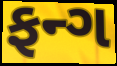
ફન્ગ